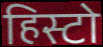
हिस्टो